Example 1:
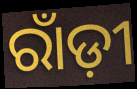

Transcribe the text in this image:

ରାଁଡ଼ୀ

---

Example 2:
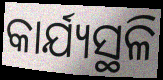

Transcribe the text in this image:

କାର୍ଯ୍ୟସ୍ଥଳି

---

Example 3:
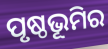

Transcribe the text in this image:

ପୃଷ୍ଠଭୂମିର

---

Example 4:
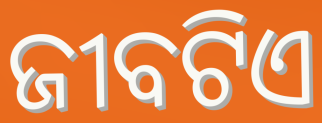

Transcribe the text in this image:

ଜୀବଟିଏ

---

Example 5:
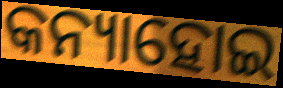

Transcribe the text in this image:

କନ୍ୟାହୋଇ